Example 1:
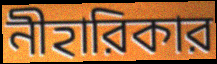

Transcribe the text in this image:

নীহারিকার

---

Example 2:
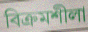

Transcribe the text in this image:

বিক্রমশীলা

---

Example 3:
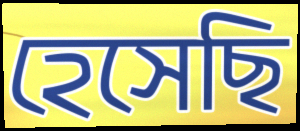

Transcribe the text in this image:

হেসেছি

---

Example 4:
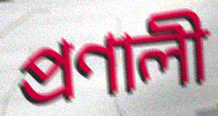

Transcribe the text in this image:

প্রণালী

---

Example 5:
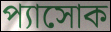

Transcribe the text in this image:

প্যাসোক